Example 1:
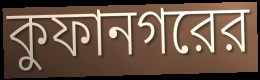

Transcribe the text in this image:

কুফানগরের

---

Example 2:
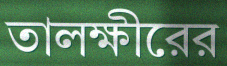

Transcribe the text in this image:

তালক্ষীরের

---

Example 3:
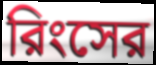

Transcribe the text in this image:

রিংসের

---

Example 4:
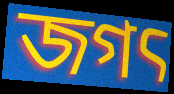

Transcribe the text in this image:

জগৎ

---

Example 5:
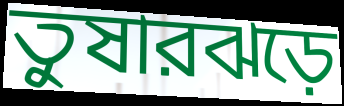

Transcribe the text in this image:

তুষারঝড়ে